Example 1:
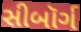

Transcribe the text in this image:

સીબૉર્ગ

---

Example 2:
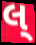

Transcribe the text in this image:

લ્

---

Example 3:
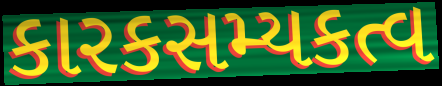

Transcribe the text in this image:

કારકસમ્યકત્વ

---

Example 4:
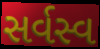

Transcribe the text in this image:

સર્વસ્વ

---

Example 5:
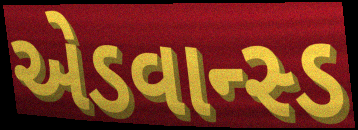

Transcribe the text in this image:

એડવાન્સ્ડ